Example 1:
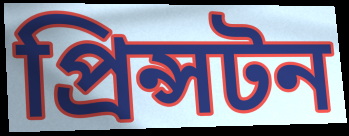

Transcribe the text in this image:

প্ৰিন্সটন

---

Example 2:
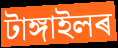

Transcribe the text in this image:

টাঙ্গাইলৰ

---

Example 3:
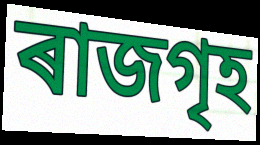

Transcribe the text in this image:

ৰাজগৃহ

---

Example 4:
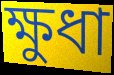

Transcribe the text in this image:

ক্ষুধা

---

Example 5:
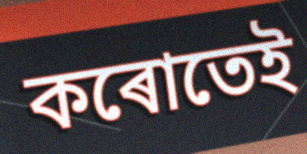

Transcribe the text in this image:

কৰোতেই